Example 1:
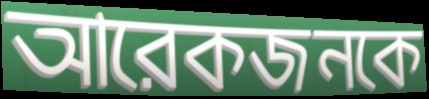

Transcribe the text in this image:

আরেকজনকে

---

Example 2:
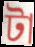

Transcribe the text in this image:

টা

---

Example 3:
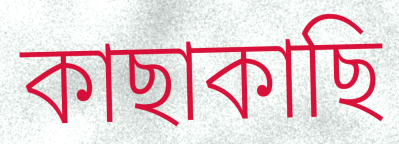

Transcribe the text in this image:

কাছাকাছি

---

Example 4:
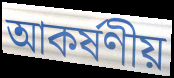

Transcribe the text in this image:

আকর্ষণীয়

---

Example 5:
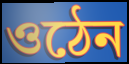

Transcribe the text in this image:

ওঠেন